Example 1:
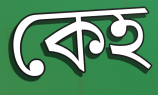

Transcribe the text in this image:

কেহ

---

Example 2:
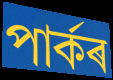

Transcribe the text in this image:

পাৰ্কৰ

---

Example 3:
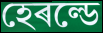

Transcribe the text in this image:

হেৰল্ডে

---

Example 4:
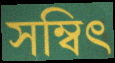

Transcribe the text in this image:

সম্বিৎ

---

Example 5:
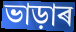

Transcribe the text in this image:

ভাড়াৰ